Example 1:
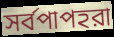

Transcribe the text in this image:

সর্বপাপহরা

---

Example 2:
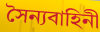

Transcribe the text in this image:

সৈন্যবাহিনী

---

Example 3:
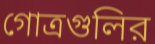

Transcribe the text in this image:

গোত্রগুলির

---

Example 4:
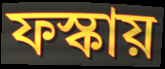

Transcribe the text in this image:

ফস্কায়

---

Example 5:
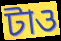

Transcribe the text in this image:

টাও